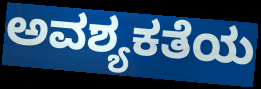
ಅವಶ್ಯಕತೆಯ